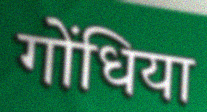
गोंधिया